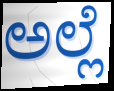
ಅಲ್ಲೆ